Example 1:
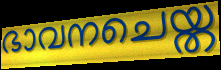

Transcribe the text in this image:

ഭാവനചെയ്ത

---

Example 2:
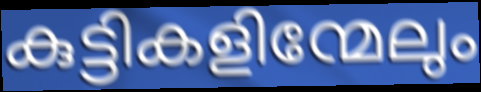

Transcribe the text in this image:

കുട്ടികളിന്മേലും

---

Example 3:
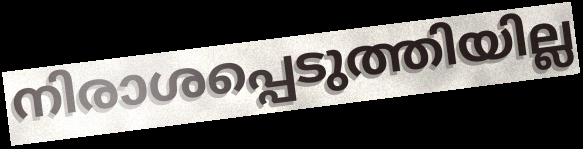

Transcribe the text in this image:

നിരാശപ്പെടുത്തിയില്ല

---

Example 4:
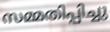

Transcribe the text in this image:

സമ്മതിപ്പിച്ചു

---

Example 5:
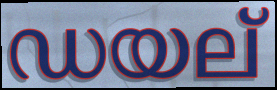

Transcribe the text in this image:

ഡയല്